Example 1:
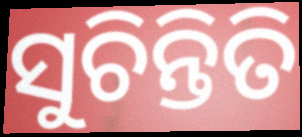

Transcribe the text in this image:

ସୁଚିନ୍ତିତି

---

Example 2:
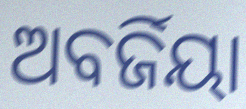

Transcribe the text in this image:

ଅବର୍ଜିୟା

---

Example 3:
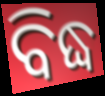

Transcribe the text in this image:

ବିଦ୍ଧ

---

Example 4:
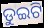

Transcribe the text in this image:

ଡୁଇଟି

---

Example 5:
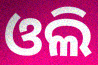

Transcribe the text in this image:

ଓଲି